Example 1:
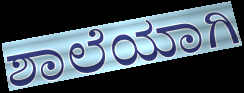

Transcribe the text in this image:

ಶಾಲೆಯಾಗಿ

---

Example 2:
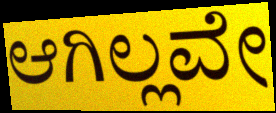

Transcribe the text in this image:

ಆಗಿಲ್ಲವೇ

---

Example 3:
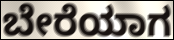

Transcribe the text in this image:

ಬೇರೆಯಾಗ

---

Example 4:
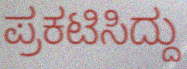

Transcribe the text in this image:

ಪ್ರಕಟಿಸಿದ್ದು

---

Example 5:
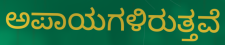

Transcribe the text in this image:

ಅಪಾಯಗಳಿರುತ್ತವೆ